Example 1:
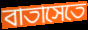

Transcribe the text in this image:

বাতাসেতে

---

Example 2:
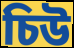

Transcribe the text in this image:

চিউ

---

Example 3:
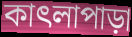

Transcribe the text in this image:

কাৎলাপাড়া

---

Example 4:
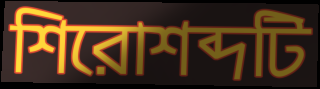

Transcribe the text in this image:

শিরোশব্দটি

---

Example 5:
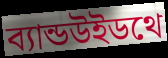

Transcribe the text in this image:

ব্যান্ডউইডথে